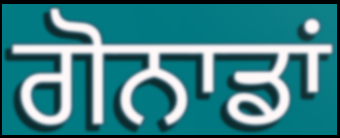
ਗੋਨਾਡਾਂ